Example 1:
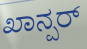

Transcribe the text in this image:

ಖಾನ್ಪರ್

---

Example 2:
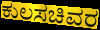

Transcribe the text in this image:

ಕುಲಸಚಿವರ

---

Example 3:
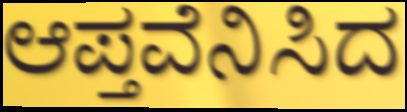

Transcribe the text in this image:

ಆಪ್ತವೆನಿಸಿದ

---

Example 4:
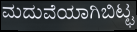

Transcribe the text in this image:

ಮದುವೆಯಾಗಿಬಿಟ್ಟ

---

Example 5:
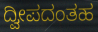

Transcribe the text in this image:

ದ್ವೀಪದಂತಹ